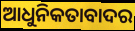
ଆଧୁନିକତାବାଦର